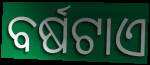
ବର୍ଷଟାଏ